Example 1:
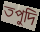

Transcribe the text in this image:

তপুদি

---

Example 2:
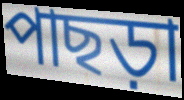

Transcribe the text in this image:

পাছড়া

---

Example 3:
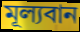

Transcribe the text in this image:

মূল্যবান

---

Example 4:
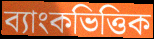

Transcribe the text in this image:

ব্যাংকভিত্তিক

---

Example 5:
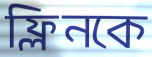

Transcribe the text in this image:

ফ্লিনকে